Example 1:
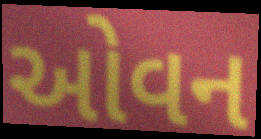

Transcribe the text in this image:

ઓવન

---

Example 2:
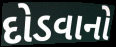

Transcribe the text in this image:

દોડવાનો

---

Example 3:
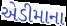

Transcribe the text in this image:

એડીમાના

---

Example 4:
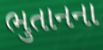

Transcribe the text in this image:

ભુતાનના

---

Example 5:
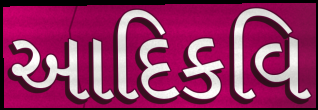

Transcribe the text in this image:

આદિકવિ